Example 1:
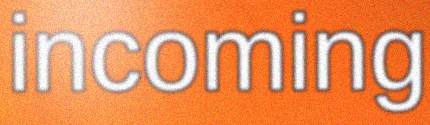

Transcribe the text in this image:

incoming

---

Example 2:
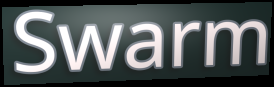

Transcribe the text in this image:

Swarm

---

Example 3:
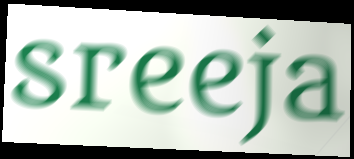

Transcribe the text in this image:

sreeja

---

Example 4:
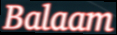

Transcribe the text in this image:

Balaam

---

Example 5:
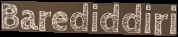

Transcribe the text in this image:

Barediddiri